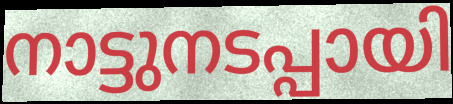
നാട്ടുനടപ്പായി